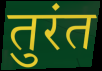
तुरंत